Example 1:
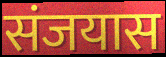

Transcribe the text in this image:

संजयास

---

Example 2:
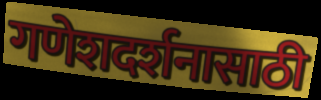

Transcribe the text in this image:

गणेशदर्शनासाठी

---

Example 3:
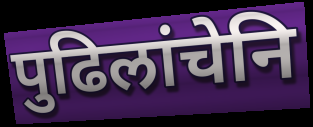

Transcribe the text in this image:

पुढिलांचेनि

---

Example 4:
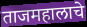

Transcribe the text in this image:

ताजमहालाचे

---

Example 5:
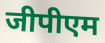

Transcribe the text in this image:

जीपीएम